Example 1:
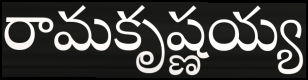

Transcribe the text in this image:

రామకృష్ణయ్య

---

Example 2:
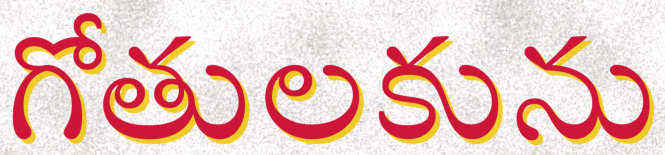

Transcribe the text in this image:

గోతులకును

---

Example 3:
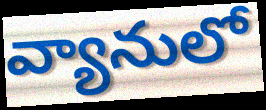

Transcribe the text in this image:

వ్యానులో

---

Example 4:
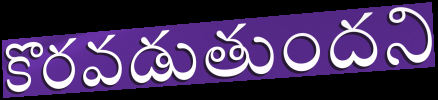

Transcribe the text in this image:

కొరవడుతుందని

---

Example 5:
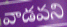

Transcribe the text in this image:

వాడవని